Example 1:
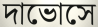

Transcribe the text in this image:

দাভোসে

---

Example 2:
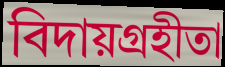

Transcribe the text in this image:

বিদায়গ্রহীতা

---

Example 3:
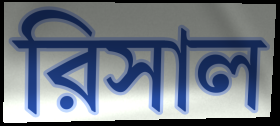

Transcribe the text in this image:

রিসাল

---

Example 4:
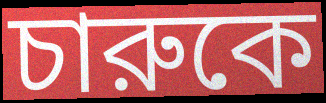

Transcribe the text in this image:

চারুকে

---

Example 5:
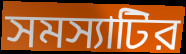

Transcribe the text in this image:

সমস্যাটির